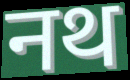
नथ